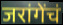
जरांगेंचं